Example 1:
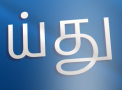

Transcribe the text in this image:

ய்து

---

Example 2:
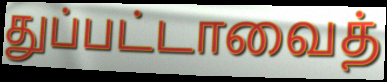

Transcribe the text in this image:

துப்பட்டாவைத்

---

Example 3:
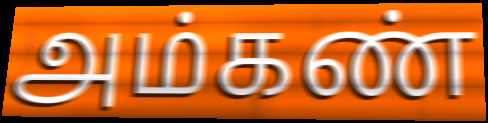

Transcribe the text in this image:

அம்கண்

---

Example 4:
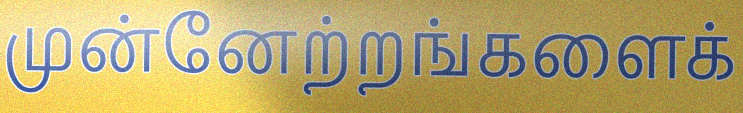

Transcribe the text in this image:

முன்னேற்றங்களைக்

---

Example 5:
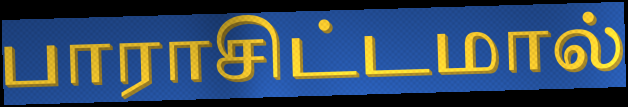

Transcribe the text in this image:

பாராசிட்டமால்